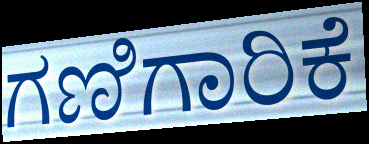
ಗಣಿಗಾರಿಕೆ